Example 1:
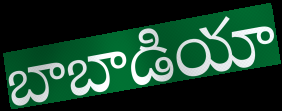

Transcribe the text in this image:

బాబాడియా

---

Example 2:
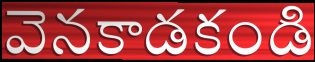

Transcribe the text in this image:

వెనకాడకండి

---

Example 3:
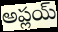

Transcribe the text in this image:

అప్లయ్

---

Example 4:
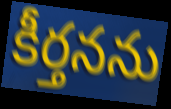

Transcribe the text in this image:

కీర్తనను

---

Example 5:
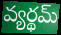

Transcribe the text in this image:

వ్యర్థమ్